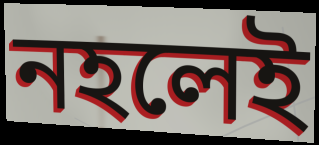
নহলেই